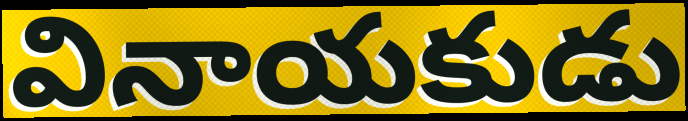
వినాయకుడు